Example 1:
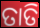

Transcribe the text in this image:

ତାତି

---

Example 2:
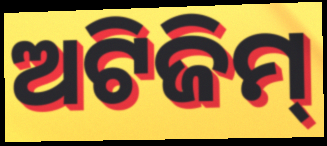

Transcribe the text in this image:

ଅଟିଜିମ୍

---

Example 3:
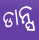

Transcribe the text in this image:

ଡାନ୍ସ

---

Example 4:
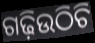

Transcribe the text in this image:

ଗଢ଼ିଉଠିଚି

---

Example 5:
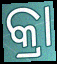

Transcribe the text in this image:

କ୍ରା